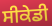
ਸੀਕੇਡੀ